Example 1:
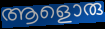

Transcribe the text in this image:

ആളൊരു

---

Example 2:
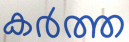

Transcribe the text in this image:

കർത്ത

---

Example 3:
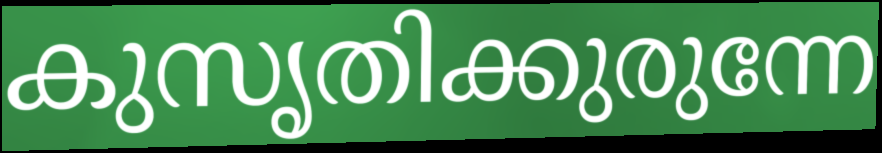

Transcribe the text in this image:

കുസൃതിക്കുരുന്നേ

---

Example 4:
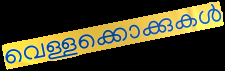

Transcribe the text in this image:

വെള്ളക്കൊക്കുകൾ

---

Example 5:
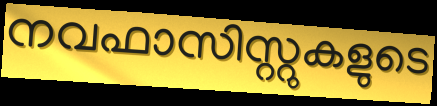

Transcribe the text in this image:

നവഫാസിസ്റ്റുകളുടെ